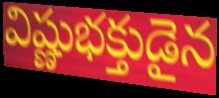
విష్ణుభక్తుడైన